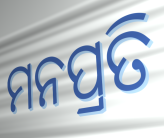
ମନପ୍ରତି